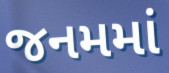
જનમમાં